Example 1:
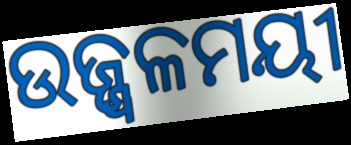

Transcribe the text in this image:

ଉଜ୍ଜ୍ୱଳମୟୀ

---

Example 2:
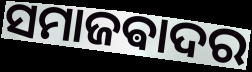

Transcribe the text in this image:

ସମାଜଵାଦର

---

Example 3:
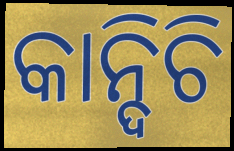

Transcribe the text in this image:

କାନ୍ଦିଚି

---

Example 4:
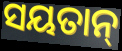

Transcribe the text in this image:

ସୟତାନ୍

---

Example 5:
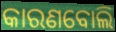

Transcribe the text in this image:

କାରଣବୋଲି